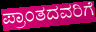
ಪ್ರಾಂತದವರಿಗೆ